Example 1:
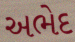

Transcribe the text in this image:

અભેદ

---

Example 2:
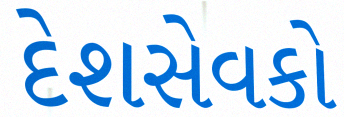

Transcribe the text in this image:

દેશસેવકો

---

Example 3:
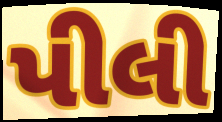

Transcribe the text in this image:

પીલી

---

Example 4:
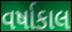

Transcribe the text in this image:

વર્ષાકાલ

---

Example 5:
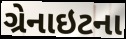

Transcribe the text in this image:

ગ્રેનાઇટના